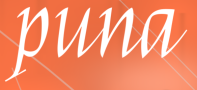
puna